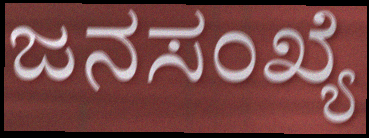
ಜನಸಂಖ್ಯೆ